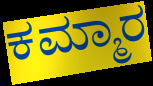
ಕಮ್ಮಾರ